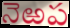
నెఱప